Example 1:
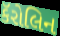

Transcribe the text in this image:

કૅરોલિન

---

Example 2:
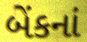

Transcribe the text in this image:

બેંકનાં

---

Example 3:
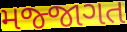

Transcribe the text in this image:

મજ્જાગત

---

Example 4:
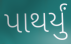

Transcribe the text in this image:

પાથર્યું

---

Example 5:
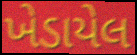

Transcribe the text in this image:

ખેડાયેલ